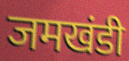
जमखंडी